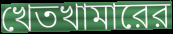
খেতখামারের